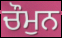
ਚੌਮੁਨ